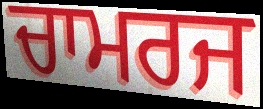
ਚਾਮਰਜ